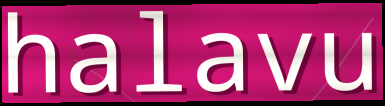
halavu